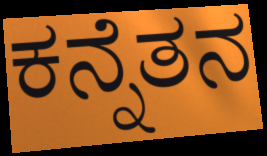
ಕನ್ನೆತನ